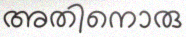
അതിനൊരു